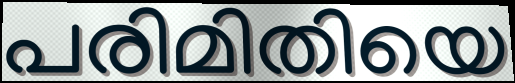
പരിമിതിയെ